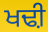
ਖਢ਼ੀ